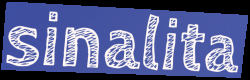
sinalita